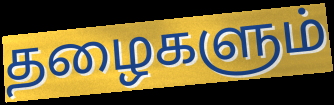
தழைகளும்